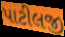
પાટીલજી